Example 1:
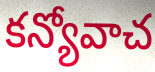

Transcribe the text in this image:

కన్యోవాచ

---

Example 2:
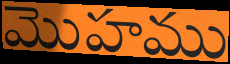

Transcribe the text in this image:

మొహము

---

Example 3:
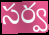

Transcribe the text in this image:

సర్వ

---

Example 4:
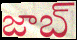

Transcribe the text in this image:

జాబ్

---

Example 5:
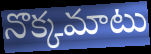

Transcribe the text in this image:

నొక్కమాటు